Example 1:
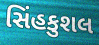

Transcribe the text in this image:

સિંહકુશલ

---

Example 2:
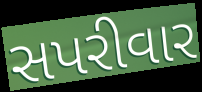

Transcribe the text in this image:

સપરીવાર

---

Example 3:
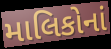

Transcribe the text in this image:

માલિકોનાં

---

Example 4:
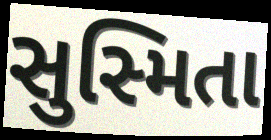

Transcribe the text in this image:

સુસ્મિતા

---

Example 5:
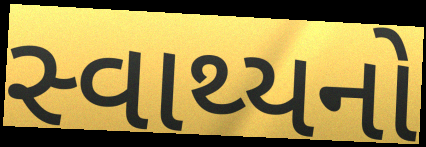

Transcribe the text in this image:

સ્વાથ્યનો